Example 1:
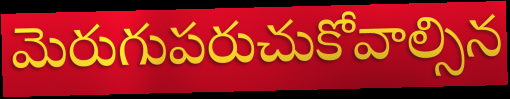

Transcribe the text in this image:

మెరుగుపరుచుకోవాల్సిన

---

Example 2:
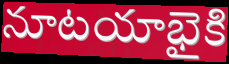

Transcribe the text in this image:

నూటయాభైకి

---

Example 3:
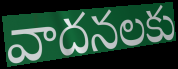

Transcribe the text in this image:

వాదనలకు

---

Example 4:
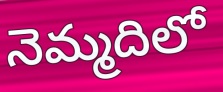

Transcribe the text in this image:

నెమ్మదిలో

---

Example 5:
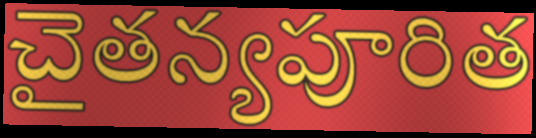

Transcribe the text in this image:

చైతన్యపూరిత